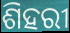
ଶିହରୀ